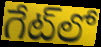
గేట్‌లో